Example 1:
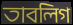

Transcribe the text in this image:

তাবলিগ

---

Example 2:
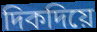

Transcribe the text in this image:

দিকদিয়ে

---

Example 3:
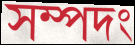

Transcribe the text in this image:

সম্পদং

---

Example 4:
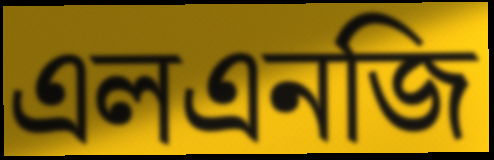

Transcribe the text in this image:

এলএনজি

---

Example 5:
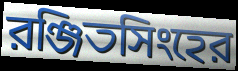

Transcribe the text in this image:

রঞ্জিতসিংহের